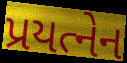
પ્રયત્નેન